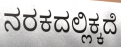
ನರಕದಲ್ಲಿಕ್ಕದೆ